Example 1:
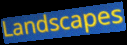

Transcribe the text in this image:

Landscapes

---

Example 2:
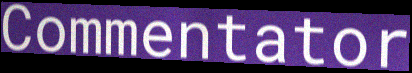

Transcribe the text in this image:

Commentator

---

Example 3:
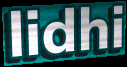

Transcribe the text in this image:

lidhi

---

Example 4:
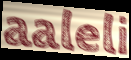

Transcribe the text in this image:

aaleli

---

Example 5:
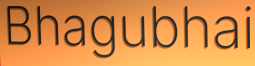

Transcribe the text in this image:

Bhagubhai